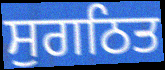
ਸੁਗਠਿਤ